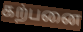
கற்பனை